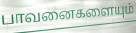
பாவனைகளையும்